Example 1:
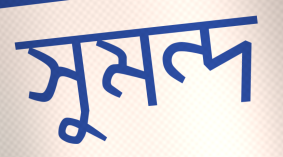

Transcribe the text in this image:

সুমন্দ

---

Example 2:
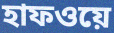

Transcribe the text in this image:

হাফওয়ে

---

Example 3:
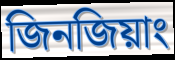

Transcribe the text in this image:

জিনজিয়াং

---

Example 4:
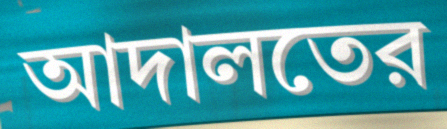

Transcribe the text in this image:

আদালতের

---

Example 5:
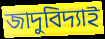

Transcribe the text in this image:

জাদুবিদ্যাই